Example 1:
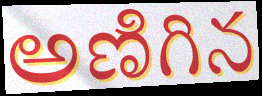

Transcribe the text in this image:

అణిగిన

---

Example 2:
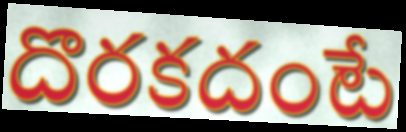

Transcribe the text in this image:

దొరకదంటే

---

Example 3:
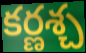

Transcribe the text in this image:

కర్ణశ్చ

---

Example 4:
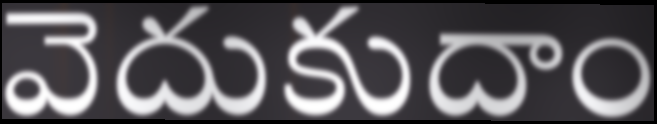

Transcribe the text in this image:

వెదుకుదాం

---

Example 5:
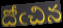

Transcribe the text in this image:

దోఁచిన